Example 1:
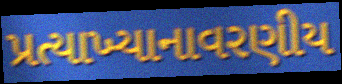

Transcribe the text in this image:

પ્રત્યાખ્યાનાવરણીય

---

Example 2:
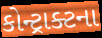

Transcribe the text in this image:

કોન્ટ્રાક્ટના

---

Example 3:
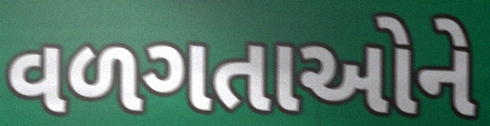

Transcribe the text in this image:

વળગતાઓને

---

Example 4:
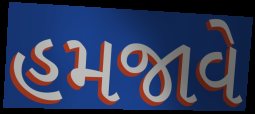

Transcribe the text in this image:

હમજાવે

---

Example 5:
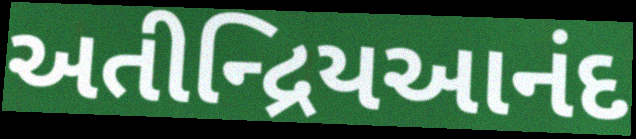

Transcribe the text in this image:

અતીન્દ્રિયઆનંદ